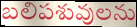
బలిపశువులను